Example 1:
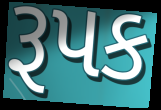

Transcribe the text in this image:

રૂપક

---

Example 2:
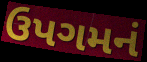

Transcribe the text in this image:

ઉપગમનં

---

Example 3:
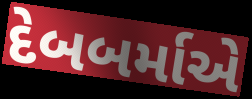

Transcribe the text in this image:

દેબબર્માએ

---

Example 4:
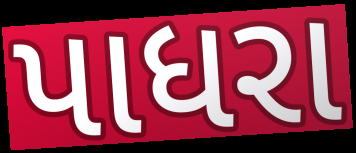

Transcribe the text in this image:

પાધરા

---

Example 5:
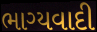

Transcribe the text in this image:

ભાગ્યવાદી